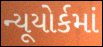
ન્યૂયોર્કમાં